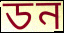
ডন